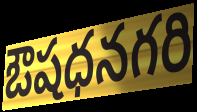
ఔషధనగరి